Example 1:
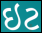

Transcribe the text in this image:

ઇટ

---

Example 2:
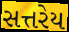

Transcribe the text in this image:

સત્તરેય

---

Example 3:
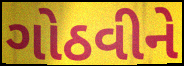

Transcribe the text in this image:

ગોઠવીને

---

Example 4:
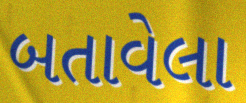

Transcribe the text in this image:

બતાવેલા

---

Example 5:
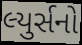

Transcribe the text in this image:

લ્યુર્સનો